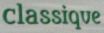
classique